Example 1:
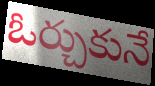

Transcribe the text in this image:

ఓర్చుకునే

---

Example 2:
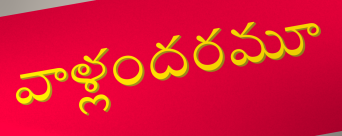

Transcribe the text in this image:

వాళ్లందరమూ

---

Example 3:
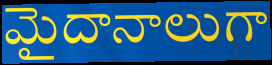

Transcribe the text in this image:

మైదానాలుగా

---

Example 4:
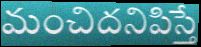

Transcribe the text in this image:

మంచిదనిపిస్తే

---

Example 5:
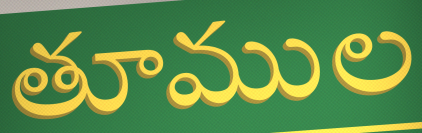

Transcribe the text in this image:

తూముల